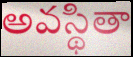
అవస్థితా